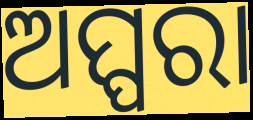
ଅପ୍ପରା